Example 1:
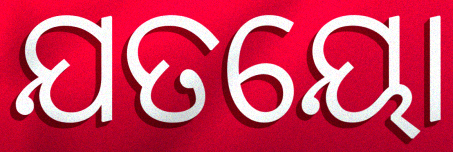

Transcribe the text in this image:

ଯତୟୋ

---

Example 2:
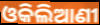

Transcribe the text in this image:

ଓକିଲିଆଣୀ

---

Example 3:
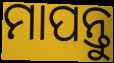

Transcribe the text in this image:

ମାପନ୍ତୁ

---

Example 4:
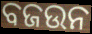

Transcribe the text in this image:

ବଜଉନ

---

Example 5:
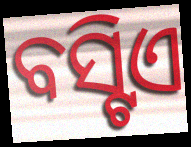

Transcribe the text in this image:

ବସ୍ଟିଏ